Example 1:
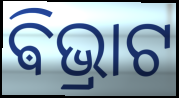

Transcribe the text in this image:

ଵିଭ୍ରାଟ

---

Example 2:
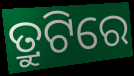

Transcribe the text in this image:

ତ୍ରୁଟିରେ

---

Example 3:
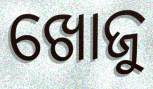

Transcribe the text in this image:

ଖୋଜୁ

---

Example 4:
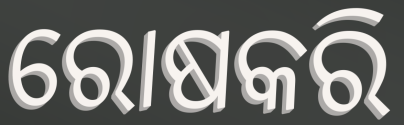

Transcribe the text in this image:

ରୋଷକରି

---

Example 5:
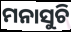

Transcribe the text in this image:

ମନାସୁଚି